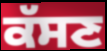
ਕੱਸਣ